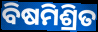
ବିଷମିଶ୍ରିତ